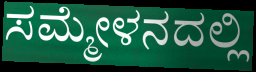
ಸಮ್ಮೇಳನದಲ್ಲಿ